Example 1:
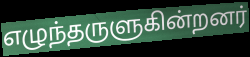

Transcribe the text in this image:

எழுந்தருளுகின்றனர்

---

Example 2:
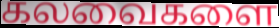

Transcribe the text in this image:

கலவைகளை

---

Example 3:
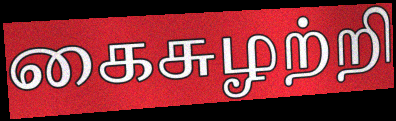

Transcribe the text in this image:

கைசுழற்றி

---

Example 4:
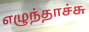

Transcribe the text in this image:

எழுந்தாச்சு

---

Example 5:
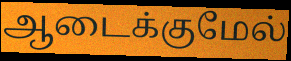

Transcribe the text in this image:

ஆடைக்குமேல்